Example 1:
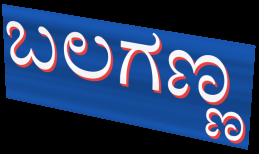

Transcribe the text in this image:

ಬಲಗಣ್ಣ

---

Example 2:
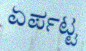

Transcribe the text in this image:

ಏರ್ಪಟ್ಟ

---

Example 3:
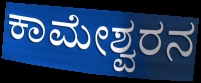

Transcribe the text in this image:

ಕಾಮೇಶ್ವರನ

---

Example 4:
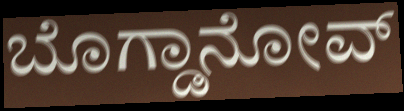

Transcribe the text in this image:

ಬೊಗ್ಡಾನೋವ್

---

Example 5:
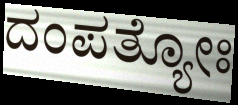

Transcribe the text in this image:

ದಂಪತ್ಯೋಃ